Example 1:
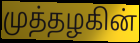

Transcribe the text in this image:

முத்தழகின்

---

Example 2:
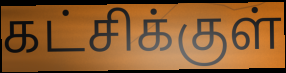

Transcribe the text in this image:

கட்சிக்குள்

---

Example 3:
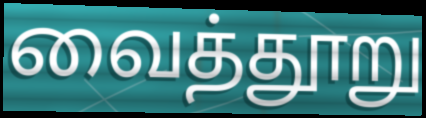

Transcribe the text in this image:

வைத்தூறு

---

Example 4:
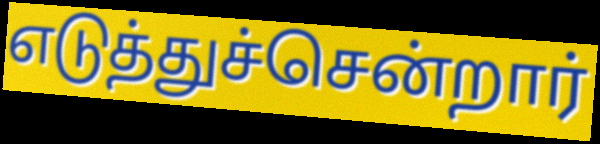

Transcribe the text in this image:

எடுத்துச்சென்றார்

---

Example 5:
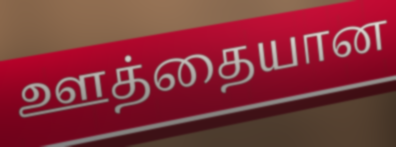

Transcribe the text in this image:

ஊத்தையான